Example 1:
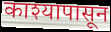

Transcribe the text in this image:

काश्यापासून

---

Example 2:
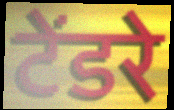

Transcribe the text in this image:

टेंडरे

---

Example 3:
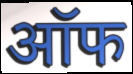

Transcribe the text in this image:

ऑफ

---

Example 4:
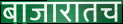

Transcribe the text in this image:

बाजारातच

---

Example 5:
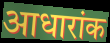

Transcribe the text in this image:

आधारांक